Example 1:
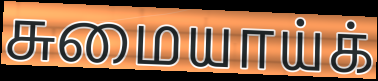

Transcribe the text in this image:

சுமையாய்க்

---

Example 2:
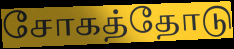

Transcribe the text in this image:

சோகத்தோடு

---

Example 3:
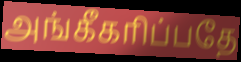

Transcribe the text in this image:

அங்கீகரிப்பதே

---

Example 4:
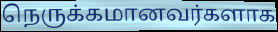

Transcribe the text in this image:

நெருக்கமானவர்களாக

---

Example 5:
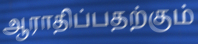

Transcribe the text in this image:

ஆராதிப்பதற்கும்